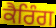
ਕੈਰਿੰਗ